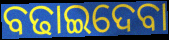
ବଢାଇଦେବା